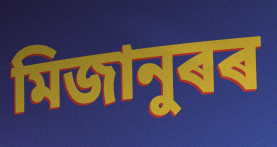
মিজানুৰৰ